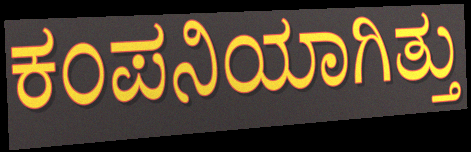
ಕಂಪನಿಯಾಗಿತ್ತು